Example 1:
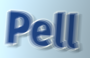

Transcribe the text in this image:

Pell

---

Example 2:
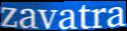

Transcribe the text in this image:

zavatra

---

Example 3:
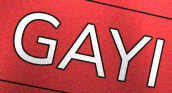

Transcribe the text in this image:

GAYI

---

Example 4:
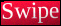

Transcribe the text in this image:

Swipe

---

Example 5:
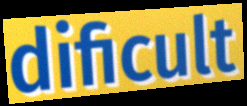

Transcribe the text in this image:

dificult